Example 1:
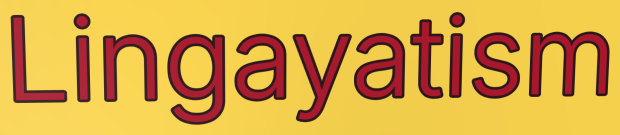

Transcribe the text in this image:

Lingayatism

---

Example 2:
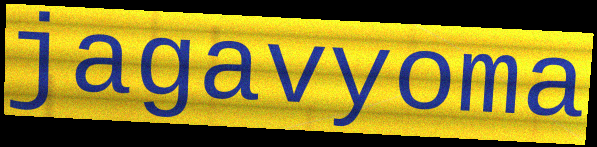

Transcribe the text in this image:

jagavyoma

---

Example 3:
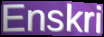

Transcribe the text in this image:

Enskri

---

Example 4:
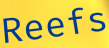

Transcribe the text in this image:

Reefs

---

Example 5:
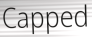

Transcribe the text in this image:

Capped